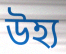
উহ্য